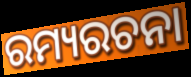
ରମ୍ୟରଚନା